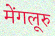
मेंगलूरु